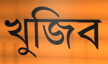
খুজিব